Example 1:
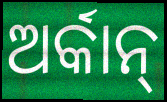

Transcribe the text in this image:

ଅର୍କାନ୍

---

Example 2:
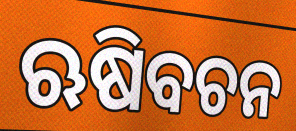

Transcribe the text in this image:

ଋଷିବଚନ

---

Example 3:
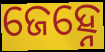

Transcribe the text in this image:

ଜେହ୍ନେ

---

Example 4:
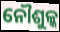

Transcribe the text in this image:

ନୌଶୁଳ୍କ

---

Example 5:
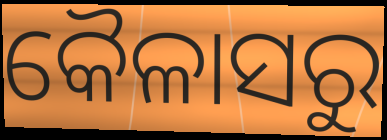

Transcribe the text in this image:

କୈଳାସରୁ